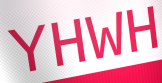
YHWH